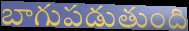
బాగుపడుతుంది